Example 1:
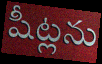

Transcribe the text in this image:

షీట్లను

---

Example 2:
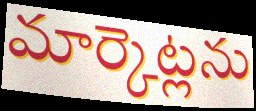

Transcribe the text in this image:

మార్కెట్లను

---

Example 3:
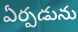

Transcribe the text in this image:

ఏర్పడును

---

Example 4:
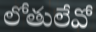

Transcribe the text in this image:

లోతులేవో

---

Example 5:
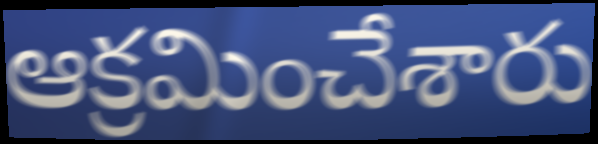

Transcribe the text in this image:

ఆక్రమించేశారు